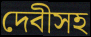
দেবীসহ